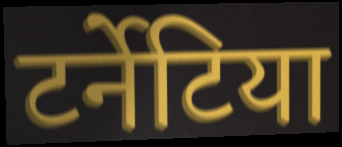
टर्नेटिया